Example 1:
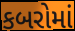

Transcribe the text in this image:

કબરોમાં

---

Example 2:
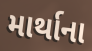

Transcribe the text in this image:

માર્થાના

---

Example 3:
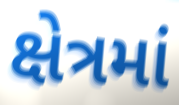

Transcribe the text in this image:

ક્ષેત્રમાં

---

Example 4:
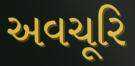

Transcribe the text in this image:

અવચૂરિ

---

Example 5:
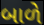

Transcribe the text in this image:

બાળે